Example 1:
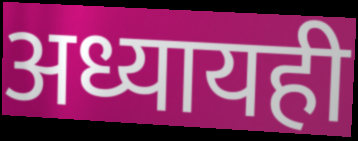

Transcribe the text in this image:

अध्यायही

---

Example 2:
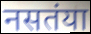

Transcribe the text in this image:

नसतंया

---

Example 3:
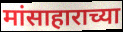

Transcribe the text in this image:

मांसाहाराच्या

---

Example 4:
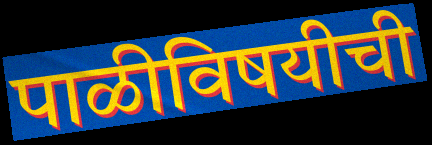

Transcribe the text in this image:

पाळीविषयीची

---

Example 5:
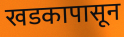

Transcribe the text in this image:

खडकापासून